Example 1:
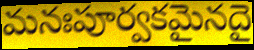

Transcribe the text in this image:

మనఃపూర్వకమైనదై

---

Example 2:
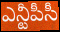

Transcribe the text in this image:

ఎన్టీపీసీ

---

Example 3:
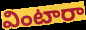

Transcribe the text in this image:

వింటారా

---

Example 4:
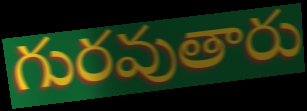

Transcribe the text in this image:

గురవుతారు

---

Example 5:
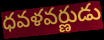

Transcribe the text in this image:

ధవళవర్ణుడు